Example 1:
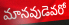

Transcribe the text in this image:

మానవుడెవరో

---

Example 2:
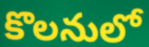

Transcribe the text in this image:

కొలనులో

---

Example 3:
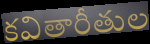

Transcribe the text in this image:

కవితారీతుల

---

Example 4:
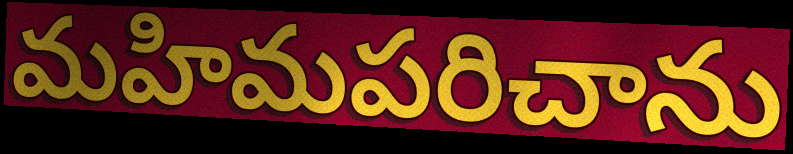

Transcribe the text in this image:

మహిమపరిచాను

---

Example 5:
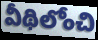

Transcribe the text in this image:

వీథిలోంచి